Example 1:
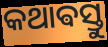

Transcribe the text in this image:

କଥାଵସ୍ତୁ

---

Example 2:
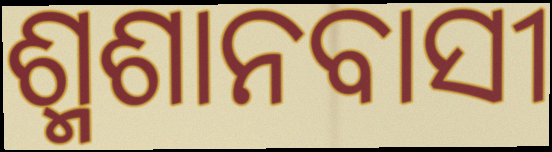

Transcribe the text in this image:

ଶ୍ମଶାନବାସୀ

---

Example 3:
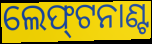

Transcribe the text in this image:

ଲେଫ୍‌ଟନାଣ୍ଟ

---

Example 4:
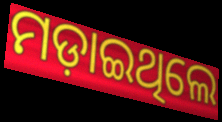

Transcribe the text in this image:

ମଡ଼ାଇଥିଲେ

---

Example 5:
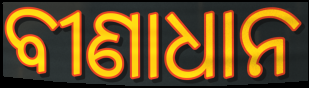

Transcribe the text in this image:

ବୀଣାଧାନ